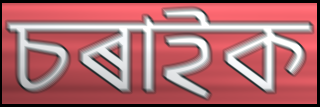
চৰাইক